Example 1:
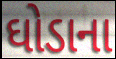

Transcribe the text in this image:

ઘોડાના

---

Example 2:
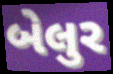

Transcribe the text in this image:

બેલુર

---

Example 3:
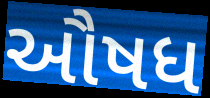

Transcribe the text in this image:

ઔષધ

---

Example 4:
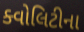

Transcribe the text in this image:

ક્વોલિટીના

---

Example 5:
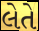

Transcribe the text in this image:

લેતે